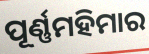
ପୂର୍ଣ୍ଣମହିମାର